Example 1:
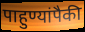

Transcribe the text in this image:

पाहुण्यांपैकी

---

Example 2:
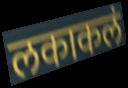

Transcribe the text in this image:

लकाकलं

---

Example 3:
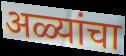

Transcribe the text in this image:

अळ्यांचा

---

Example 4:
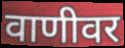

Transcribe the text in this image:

वाणीवर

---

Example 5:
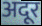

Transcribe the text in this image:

अदूर